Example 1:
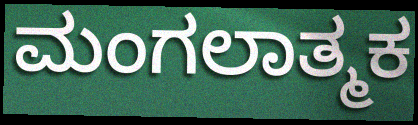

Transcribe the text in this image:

ಮಂಗಲಾತ್ಮಕ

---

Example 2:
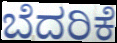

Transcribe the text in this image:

ಬೆದರಿಕೆ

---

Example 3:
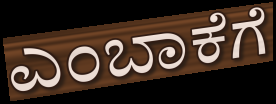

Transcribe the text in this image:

ಎಂಬಾಕೆಗೆ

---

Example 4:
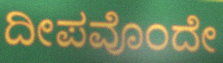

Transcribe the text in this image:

ದೀಪವೊಂದೇ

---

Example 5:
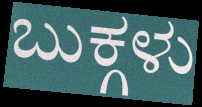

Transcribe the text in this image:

ಬುಕ್ಗಳು